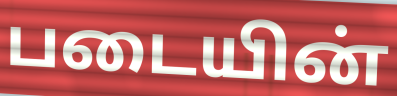
படையின்